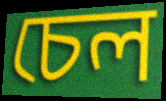
চেল